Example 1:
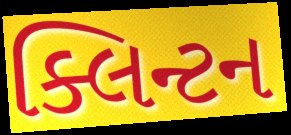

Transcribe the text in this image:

ક્લિન્ટન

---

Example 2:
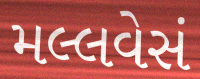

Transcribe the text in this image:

મલ્લવેસં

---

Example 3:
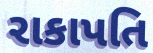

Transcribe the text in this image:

રાકાપતિ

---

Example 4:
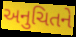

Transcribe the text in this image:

અનુચિતને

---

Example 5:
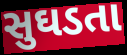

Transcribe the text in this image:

સુઘડતા